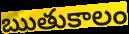
ఋతుకాలం